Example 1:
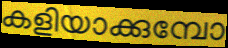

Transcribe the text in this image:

കളിയാക്കുമ്പോ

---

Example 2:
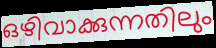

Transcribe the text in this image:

ഒഴിവാക്കുന്നതിലും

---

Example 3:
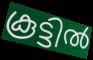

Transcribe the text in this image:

കൂട്ടിൽ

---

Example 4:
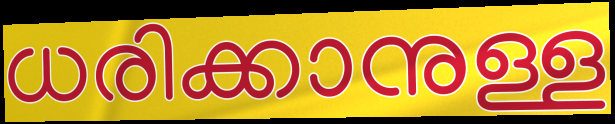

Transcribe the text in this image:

ധരിക്കാനുള്ള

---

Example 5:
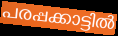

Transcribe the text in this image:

പരപ്പക്കാട്ടിൽ